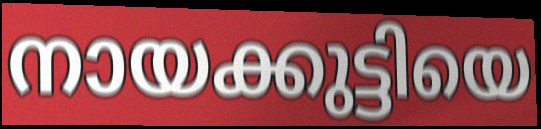
നായക്കുട്ടിയെ